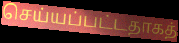
செய்யப்பட்டதாகத்